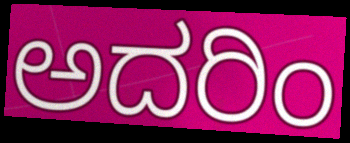
ಅದರಿಂ